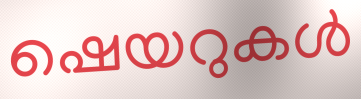
ഷെയറുകൾ